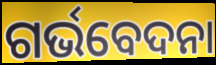
ଗର୍ଭବେଦନା